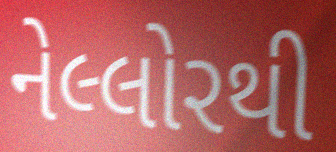
નેલ્લોરથી